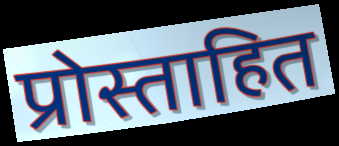
प्रोस्ताहित